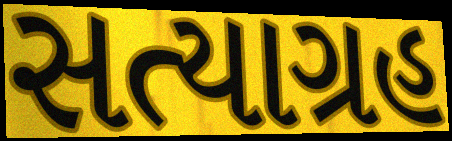
સત્‍યાગ્રહ